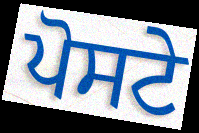
ਪੋਸਟੇ